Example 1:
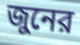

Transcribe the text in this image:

জুনের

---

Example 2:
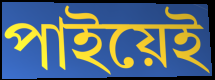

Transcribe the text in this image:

পাইয়েই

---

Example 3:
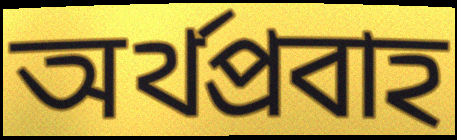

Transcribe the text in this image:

অর্থপ্রবাহ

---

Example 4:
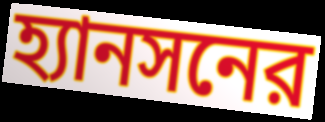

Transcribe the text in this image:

হ্যানসনের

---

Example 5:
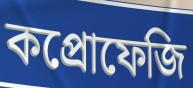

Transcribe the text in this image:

কপ্রোফেজি